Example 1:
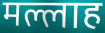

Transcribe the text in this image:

मल्‍लाह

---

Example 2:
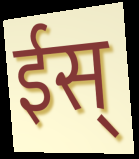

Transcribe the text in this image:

ईस्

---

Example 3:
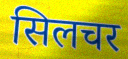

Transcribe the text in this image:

सिलचर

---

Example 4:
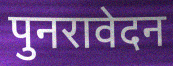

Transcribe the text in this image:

पुनरावेदन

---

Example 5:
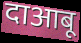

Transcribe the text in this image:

दाआबू